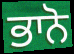
ਭਾਨੋ